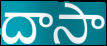
దాసా